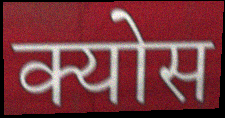
क्योस